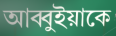
আব্বুইয়াকে